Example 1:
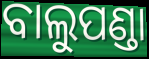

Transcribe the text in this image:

ବାଲୁପଣ୍ଡା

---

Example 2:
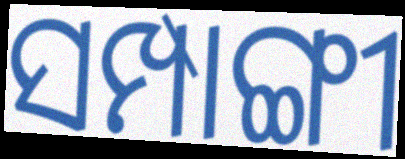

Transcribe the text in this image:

ସମ୍ପାଙ୍ଗୀ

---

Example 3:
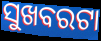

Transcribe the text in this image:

ସୁଖବରଟା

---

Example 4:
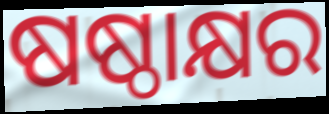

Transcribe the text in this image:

ଷଷ୍ଠାକ୍ଷର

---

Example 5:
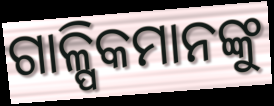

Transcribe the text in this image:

ଗାଳ୍ପିକମାନଙ୍କୁ